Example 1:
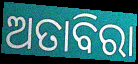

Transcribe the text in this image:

ଅତାବିରା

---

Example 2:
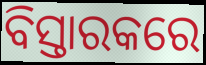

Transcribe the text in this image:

ବିସ୍ତାରକରେ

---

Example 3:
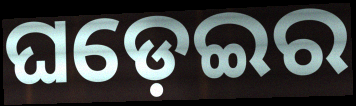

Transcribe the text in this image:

ଘଡ଼େଇର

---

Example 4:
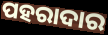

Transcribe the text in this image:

ପହରାଦାର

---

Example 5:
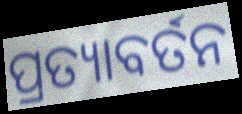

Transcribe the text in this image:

ପ୍ରତ୍ୟାବର୍ତନ